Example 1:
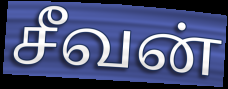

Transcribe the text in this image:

சீவன்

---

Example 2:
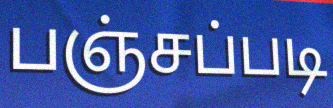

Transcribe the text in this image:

பஞ்சப்படி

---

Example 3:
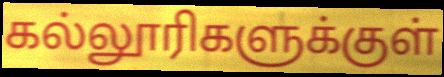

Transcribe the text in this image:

கல்லூரிகளுக்குள்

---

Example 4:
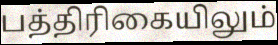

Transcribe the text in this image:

பத்திரிகையிலும்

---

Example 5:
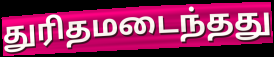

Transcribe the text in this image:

துரிதமடைந்தது